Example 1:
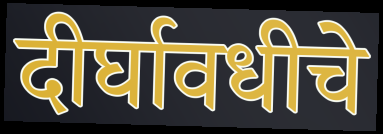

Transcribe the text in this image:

दीर्घावधीचे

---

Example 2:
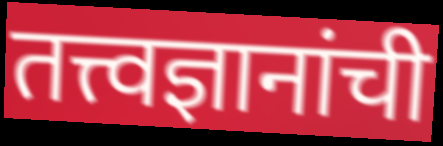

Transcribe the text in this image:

तत्त्वज्ञानांची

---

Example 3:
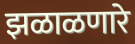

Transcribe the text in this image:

झळाळणारे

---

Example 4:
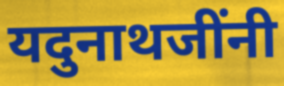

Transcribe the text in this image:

यदुनाथजींनी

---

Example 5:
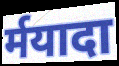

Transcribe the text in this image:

र्मयादा